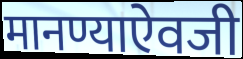
मानण्याऐवजी